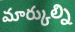
మార్కుల్ని